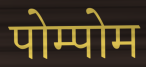
पोम्पोम